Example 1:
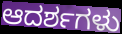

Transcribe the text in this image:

ಆದರ್ಶಗಳು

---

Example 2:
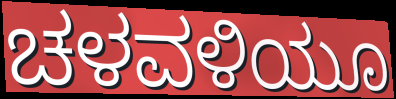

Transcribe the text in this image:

ಚಳವಳಿಯೂ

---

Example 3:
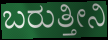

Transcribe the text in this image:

ಬರುತ್ತೀನಿ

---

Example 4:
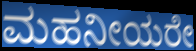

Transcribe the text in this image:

ಮಹನೀಯರೇ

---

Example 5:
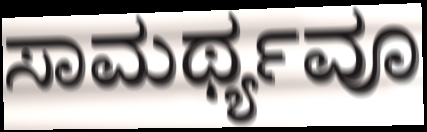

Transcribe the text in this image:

ಸಾಮರ್ಥ್ಯವೂ